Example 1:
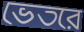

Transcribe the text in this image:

ভেতরে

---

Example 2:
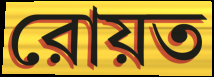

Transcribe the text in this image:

রোয়ত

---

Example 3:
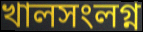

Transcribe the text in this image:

খালসংলগ্ন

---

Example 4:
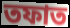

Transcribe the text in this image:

তফাত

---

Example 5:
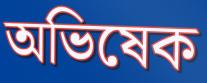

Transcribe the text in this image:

অভিষেক